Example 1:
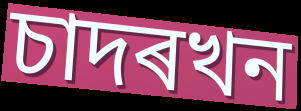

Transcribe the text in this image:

চাদৰখন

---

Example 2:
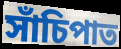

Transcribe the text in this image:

সাঁচিপাত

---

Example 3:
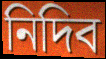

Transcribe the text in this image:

নিদিব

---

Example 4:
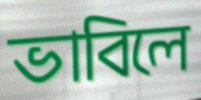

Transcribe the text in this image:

ভাবিলে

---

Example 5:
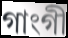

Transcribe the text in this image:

গাংগী